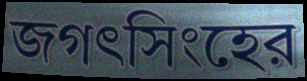
জগৎসিংহের